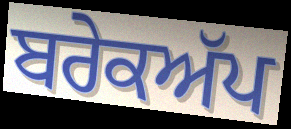
ਬਰੇਕਅੱਪ